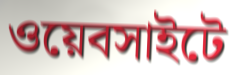
ওয়েবসাইটে